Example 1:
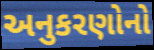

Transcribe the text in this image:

અનુકરણોનો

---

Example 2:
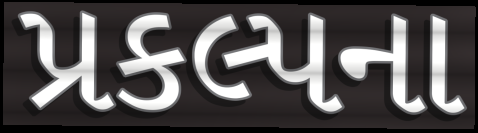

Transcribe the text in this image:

પ્રકલ્પના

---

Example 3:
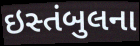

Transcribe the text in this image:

ઇસ્તંબુલના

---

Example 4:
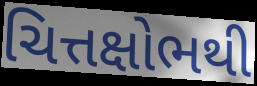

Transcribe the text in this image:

ચિત્તક્ષોભથી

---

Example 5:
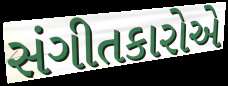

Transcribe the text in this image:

સંગીતકારોએ